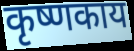
कृष्णकाय